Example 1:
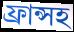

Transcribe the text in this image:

ফ্রান্সহ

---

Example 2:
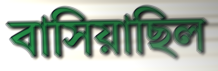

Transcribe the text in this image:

বাসিয়াছিল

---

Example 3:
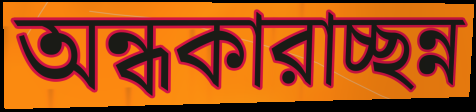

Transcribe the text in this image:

অন্ধকারাচ্ছন্ন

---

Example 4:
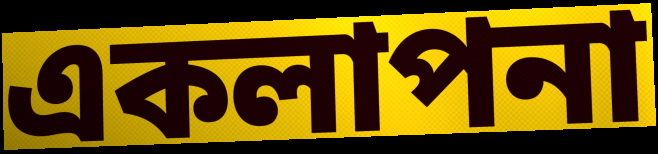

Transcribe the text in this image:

একলাপনা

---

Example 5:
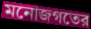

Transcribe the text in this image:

মনোজগতের